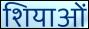
शियाओं